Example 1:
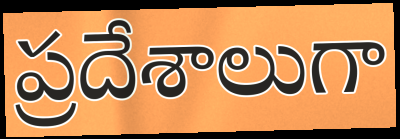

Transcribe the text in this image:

ప్రదేశాలుగా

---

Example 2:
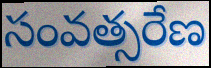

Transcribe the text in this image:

సంవత్సరేణ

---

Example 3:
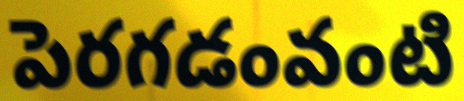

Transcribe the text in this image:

పెరగడంవంటి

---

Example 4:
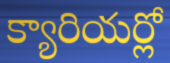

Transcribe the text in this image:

క్యారియర్లో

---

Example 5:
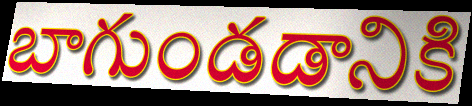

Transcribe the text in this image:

బాగుండడానికి